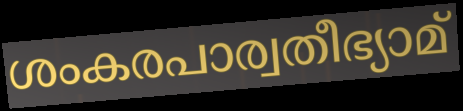
ശംകരപാര്വതീഭ്യാമ്